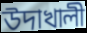
উদাখালী